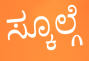
ಸ್ಕೂಲ್ಗೆ